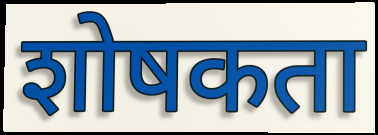
शोषकता